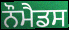
ਨੌਮੈਡਸ